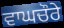
ਵਾਘਚੌਰੇ